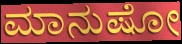
ಮಾನುಷೋ